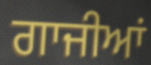
ਗਾਜੀਆਂ